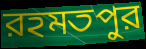
রহমতপুর